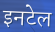
इनटेल